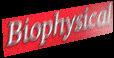
Biophysical